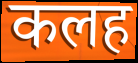
कलह